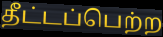
தீட்டப்பெற்ற